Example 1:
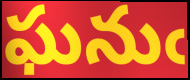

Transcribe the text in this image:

ఘనుఁ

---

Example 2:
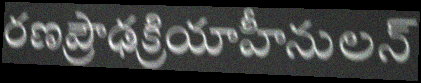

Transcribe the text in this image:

రణప్రౌఢక్రియాహీనులన్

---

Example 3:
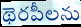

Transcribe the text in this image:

థెరపీలను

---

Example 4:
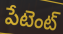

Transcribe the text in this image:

పేటెంట్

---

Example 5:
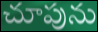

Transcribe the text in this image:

చూపును